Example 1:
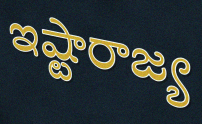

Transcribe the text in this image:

ఇష్టారాజ్య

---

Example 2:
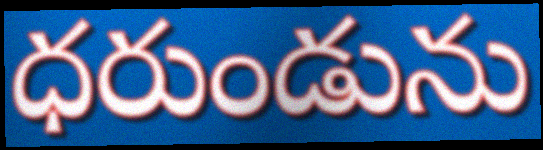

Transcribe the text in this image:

ధరుండును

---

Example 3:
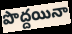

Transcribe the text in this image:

పొద్దయినా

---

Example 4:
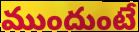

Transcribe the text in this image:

ముందుంటే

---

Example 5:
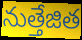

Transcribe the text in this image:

నుత్తేజిత